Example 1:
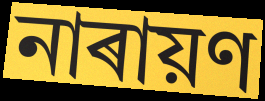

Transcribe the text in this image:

নাৰায়ণ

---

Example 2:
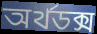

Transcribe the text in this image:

অৰ্থডক্স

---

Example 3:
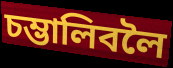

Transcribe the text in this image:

চম্ভালিবলৈ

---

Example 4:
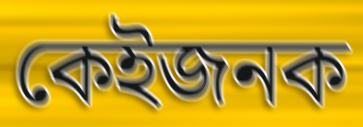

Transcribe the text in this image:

কেইজনক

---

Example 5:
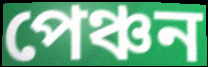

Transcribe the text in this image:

পেঞ্চন